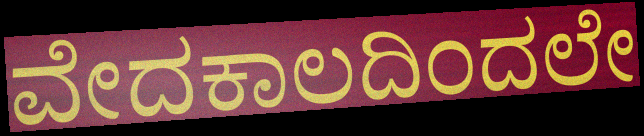
ವೇದಕಾಲದಿಂದಲೇ